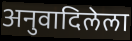
अनुवादिलेला